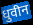
धुवीन